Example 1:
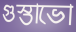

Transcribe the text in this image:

গুস্তাভো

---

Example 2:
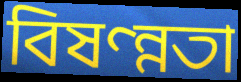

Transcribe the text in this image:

বিষণ্ন্নতা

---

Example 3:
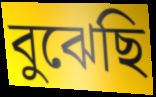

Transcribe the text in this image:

বুঝেছি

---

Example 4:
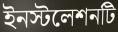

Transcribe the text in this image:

ইনস্টলেশনটি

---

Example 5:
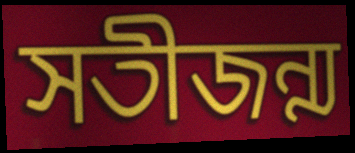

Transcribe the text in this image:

সতীজন্ম